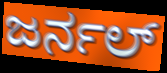
ಜರ್ನಲ್